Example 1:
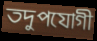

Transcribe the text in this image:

তদুপযোগী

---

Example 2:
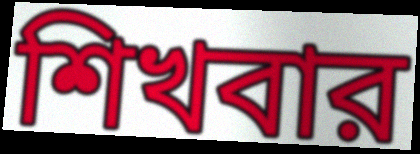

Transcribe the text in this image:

শিখবার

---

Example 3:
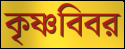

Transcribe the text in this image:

কৃষ্ণবিবর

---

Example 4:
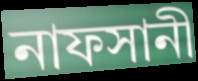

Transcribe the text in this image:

নাফসানী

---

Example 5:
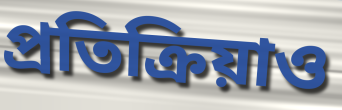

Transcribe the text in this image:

প্রতিক্রিয়াও